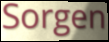
Sorgen